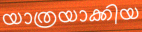
യാത്രയാക്കിയ